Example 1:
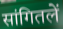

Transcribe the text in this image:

सांगितलें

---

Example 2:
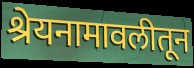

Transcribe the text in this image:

श्रेयनामावलीतून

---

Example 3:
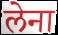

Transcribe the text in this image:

लेना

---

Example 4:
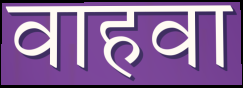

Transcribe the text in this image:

वाहवा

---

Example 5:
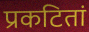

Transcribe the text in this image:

प्रकटितां